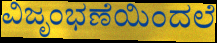
ವಿಜೃಂಭಣೆಯಿಂದಲೆ